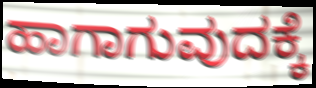
ಹಾಗಾಗುವುದಕ್ಕೆ